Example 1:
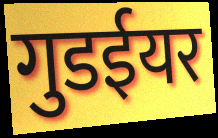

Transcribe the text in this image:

गुडईयर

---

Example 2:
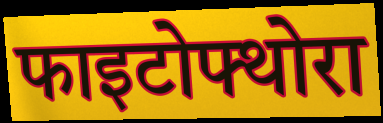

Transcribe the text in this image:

फाइटोफ्थोरा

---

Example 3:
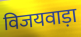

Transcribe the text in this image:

विजयवाड़ा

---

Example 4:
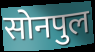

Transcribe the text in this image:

सोनपुल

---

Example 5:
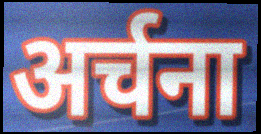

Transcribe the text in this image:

अर्चना